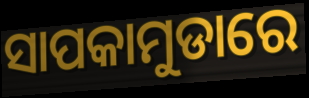
ସାପକାମୁଡାରେ